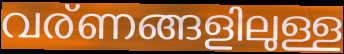
വര്ണങ്ങളിലുള്ള